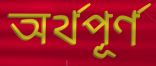
অৰ্থপূৰ্ণ